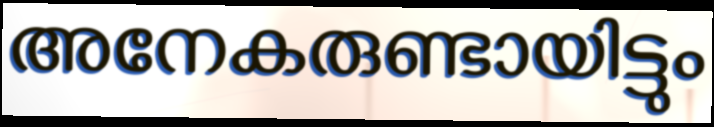
അനേകരുണ്ടായിട്ടും